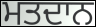
ਮਤਦਾਨ